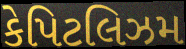
કેપિટલિઝમ